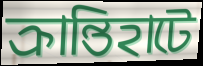
ক্রান্তিহাটে